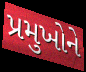
પ્રમુખોને